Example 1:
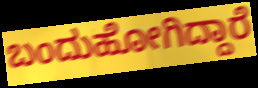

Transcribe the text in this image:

ಬಂದುಹೋಗಿದ್ದಾರೆ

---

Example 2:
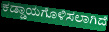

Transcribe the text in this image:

ಕಡ್ಡಾಯಗೊಳಿಸಲಾಗಿದೆ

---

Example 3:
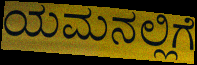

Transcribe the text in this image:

ಯಮನಲ್ಲಿಗೆ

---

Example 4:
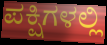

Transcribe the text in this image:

ಪಕ್ಷಿಗಳಲ್ಲಿ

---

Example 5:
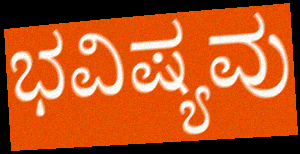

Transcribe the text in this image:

ಭವಿಷ್ಯವು